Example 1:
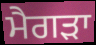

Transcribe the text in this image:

ਮੈਗੜਾ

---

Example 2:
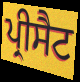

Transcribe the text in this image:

ਪ੍ਰੀਸੈਟ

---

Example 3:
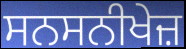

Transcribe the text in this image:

ਸਨਸਨੀਖੇਜ਼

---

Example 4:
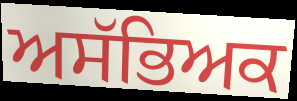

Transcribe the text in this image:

ਅਸੱਭਿਅਕ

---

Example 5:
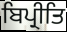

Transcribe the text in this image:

ਬਿਪ੍ਰੀਤਿ